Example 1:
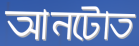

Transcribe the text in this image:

আনটোত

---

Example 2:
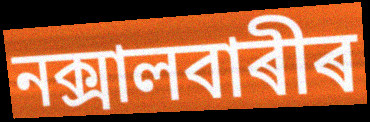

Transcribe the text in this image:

নক্সালবাৰীৰ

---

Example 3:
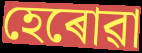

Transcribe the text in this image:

হেৰোৱা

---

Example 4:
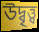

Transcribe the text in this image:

উদ্বৃত্ত্ব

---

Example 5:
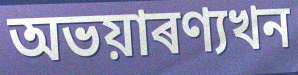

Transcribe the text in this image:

অভয়াৰণ্যখন